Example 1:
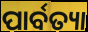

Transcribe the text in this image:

ପାର୍ବତ୍ୟା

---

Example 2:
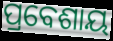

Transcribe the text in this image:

ପ୍ରବେଶାୟ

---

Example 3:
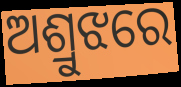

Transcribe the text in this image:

ଅଶ୍ରୁଝରେ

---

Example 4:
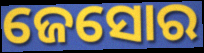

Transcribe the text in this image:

ଜେସୋର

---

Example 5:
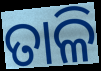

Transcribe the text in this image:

ତାଳି